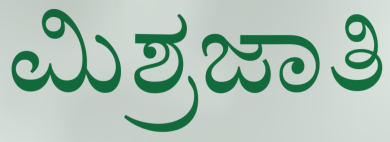
ಮಿಶ್ರಜಾತಿ